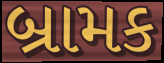
બ્રામક